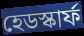
হেডস্কার্ফ